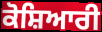
ਕੋਸ਼ਿਆਰੀ